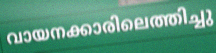
വായനക്കാരിലെത്തിച്ചു